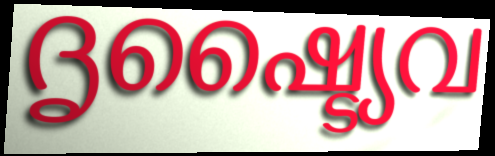
ദൃഷ്ട്യൈവ